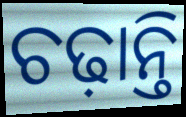
ଚଢ଼ାନ୍ତି